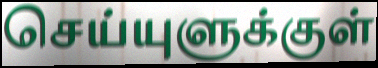
செய்யுளுக்குள்